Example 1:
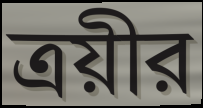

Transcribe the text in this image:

ত্রয়ীর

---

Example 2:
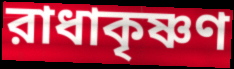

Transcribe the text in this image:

রাধাকৃষ্ণণ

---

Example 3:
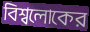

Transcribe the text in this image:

বিশ্বলোকের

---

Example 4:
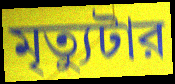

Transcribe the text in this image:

মৃত্যুটার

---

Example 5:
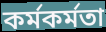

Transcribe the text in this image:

কর্মকর্মতা